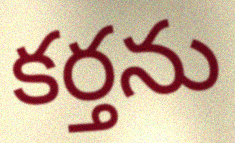
కర్తను